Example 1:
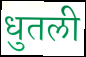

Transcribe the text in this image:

धुतली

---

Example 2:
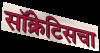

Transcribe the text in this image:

सॉक्रेटिसचा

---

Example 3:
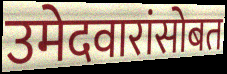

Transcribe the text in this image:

उमेदवारांसोबत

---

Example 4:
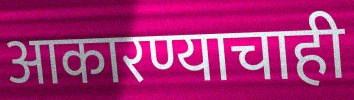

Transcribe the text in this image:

आकारण्याचाही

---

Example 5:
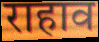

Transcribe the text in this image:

राहाव